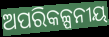
ଅପରିକଳ୍ପନୀୟ